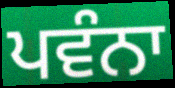
ਪਵੰਨਾ